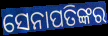
ସେନାପତିଙ୍କର